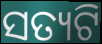
ସତ୍ୟଟି